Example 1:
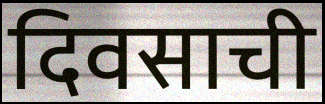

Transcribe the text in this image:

दिवसाची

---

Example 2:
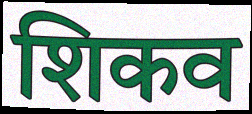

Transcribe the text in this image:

शिकव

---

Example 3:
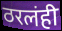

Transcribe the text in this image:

ठरलंही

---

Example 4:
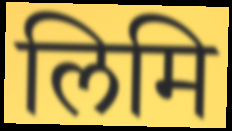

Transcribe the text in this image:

लिमि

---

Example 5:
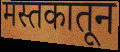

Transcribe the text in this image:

मस्तकातून